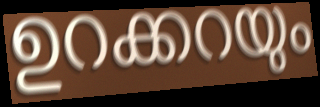
ഉറക്കറയും